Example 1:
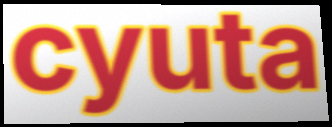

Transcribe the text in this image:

cyuta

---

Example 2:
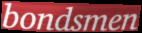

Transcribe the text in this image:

bondsmen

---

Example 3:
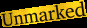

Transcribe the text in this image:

Unmarked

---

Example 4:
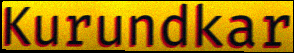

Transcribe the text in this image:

Kurundkar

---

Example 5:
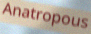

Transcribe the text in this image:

Anatropous